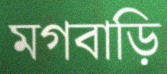
মগবাড়ি